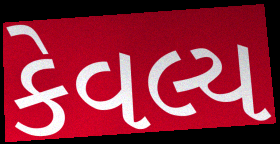
કેવલ્ય